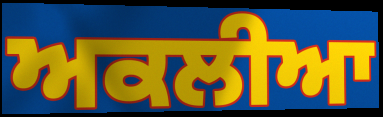
ਅਕਲੀਆ